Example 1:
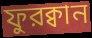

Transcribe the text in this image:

ফুরক্বান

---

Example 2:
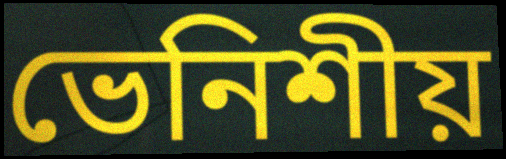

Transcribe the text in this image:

ভেনিশীয়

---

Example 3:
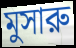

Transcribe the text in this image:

মুসারু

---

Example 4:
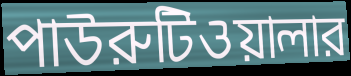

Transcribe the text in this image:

পাউরুটিওয়ালার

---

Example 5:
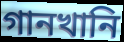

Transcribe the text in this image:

গানখানি